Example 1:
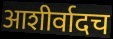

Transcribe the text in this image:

आशीर्वादच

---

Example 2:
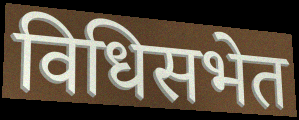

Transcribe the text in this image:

विधिसभेत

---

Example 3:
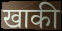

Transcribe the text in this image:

खाकी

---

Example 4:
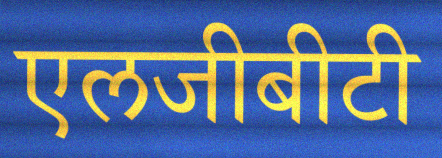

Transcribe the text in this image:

एलजीबीटी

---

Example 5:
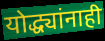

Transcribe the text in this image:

योद्ध्यांनाही